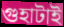
গুহাটাই